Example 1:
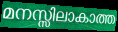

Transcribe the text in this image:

മനസ്സിലാകാത്ത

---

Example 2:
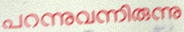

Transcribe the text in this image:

പറന്നുവന്നിരുന്നു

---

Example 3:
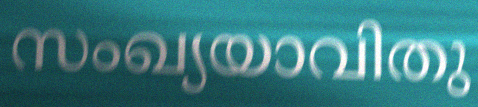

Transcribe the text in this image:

സംഖ്യയാവിതു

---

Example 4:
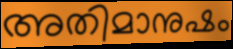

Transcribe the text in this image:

അതിമാനുഷം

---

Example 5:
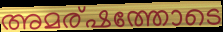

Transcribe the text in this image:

അമര്ഷത്തോടെ